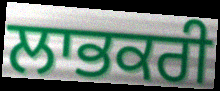
ਲਾਭਕਰੀ